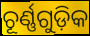
ଚୂର୍ଣ୍ଣଗୁଡ଼ିକ